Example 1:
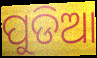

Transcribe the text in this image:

ପୁଡିଆ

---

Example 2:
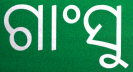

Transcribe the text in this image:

ଗାଂସୁ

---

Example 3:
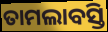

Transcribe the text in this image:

ତାମଲାବସ୍ତି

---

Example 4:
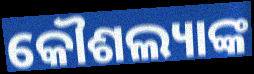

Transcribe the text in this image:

କୌଶଲ୍ୟାଙ୍କ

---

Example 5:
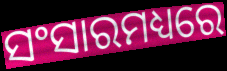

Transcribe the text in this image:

ସଂସାରମଧ୍ୟରେ